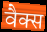
वैक्स